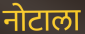
नोटाला